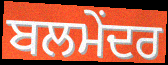
ਬਲਮੇਂਦਰ